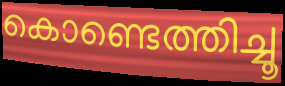
കൊണ്ടെത്തിച്ചൂ